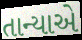
તાન્યાએ